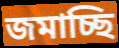
জমাচ্ছি